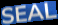
SEAL